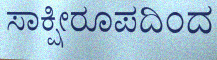
ಸಾಕ್ಷೀರೂಪದಿಂದ